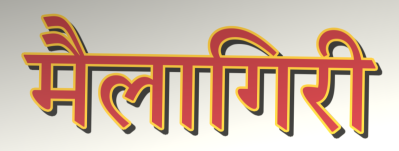
मैलागिरी